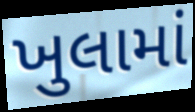
ખુલામાં